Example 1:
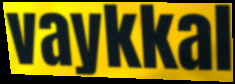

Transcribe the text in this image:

vaykkal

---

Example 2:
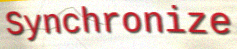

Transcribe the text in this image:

Synchronize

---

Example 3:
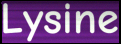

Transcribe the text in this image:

Lysine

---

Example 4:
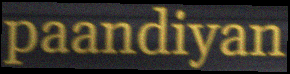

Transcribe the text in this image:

paandiyan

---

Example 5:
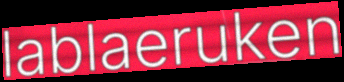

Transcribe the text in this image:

lablaeruken